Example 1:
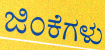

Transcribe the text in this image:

ಜಿಂಕೆಗಳು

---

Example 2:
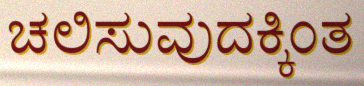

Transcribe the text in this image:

ಚಲಿಸುವುದಕ್ಕಿಂತ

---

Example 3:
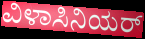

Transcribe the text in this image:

ವಿಳಾಸಿನಿಯರ್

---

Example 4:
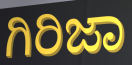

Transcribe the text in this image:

ಗಿರಿಜಾ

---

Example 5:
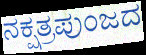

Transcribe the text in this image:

ನಕ್ಷತ್ರಪುಂಜದ